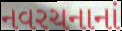
નવરચનાનાં